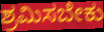
ಶ್ರಮಿಸಬೇಕು